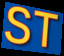
ST